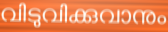
വിടുവിക്കുവാനും